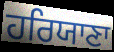
ਹਰਿਯਾਣਾ